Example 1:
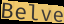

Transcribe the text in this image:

Belve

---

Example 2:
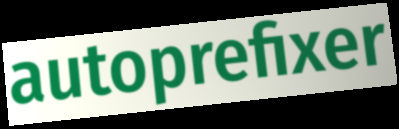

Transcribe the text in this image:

autoprefixer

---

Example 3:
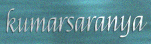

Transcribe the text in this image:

kumarsaranya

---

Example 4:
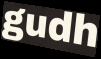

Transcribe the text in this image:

gudh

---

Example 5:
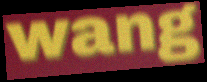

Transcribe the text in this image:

wang